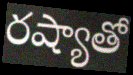
రష్యాతో